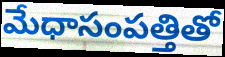
మేధాసంపత్తితో